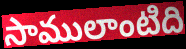
సాములాంటిది